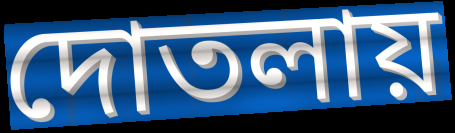
দোতলায়